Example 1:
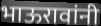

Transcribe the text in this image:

भाऊरावांनी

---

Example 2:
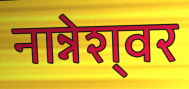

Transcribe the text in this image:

नान्नेश्वर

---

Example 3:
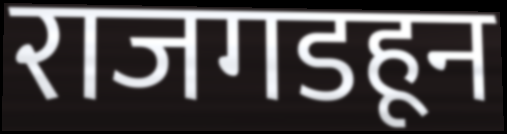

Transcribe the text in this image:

राजगडहून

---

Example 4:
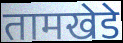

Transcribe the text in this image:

तामखेडे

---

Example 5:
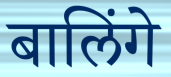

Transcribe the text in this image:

बालिंगे